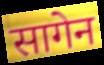
सागेन